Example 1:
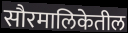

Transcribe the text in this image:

सौरमालिकेतील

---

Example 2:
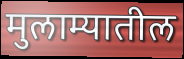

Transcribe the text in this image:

मुलाम्यातील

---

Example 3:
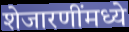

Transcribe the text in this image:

शेजारणींमध्ये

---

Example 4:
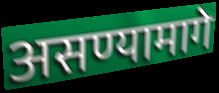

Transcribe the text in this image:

असण्यामागे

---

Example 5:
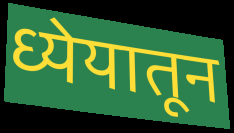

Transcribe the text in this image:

ध्येयातून